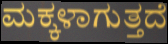
ಮಕ್ಕಳಾಗುತ್ತದೆ